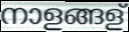
നാളങ്ങള്